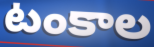
టంకాల